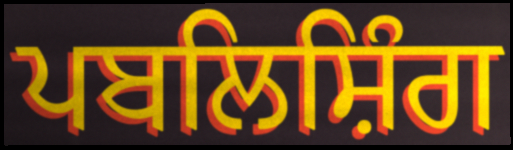
ਪਬਲਿਸ਼ਿੰਗ